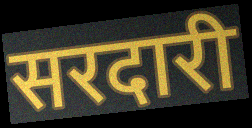
सरदारी